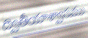
ద్వితీయాశ్వాసము